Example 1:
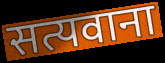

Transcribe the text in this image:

सत्यवाना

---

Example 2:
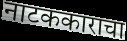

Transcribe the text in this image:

नाटककाराचा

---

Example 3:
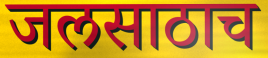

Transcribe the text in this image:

जलसाठाच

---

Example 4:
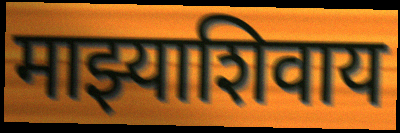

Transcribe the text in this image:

माझ्याशिवाय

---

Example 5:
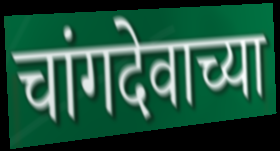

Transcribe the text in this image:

चांगदेवाच्या